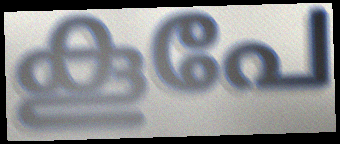
കൂപേ